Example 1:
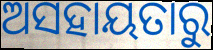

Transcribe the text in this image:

ଅସହାୟତାରୁ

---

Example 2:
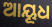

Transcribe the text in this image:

ଆୟୂଧ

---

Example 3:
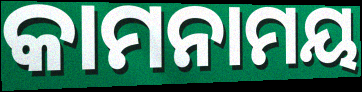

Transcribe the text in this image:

କାମନାମୟ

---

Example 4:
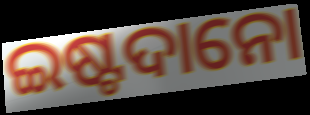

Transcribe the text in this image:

ଇଷ୍ଟଦାନୋ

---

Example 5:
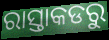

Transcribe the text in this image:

ରାସ୍ତାକଡରୁ